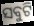
ସବୁଟି